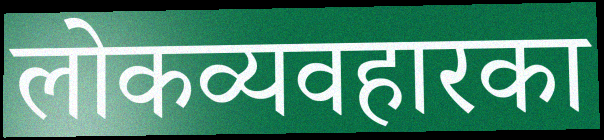
लोकव्यवहारका